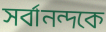
সর্বানন্দকে